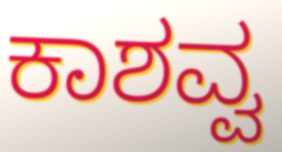
ಕಾಶವ್ವ